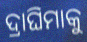
ଦ୍ରାଘିମାକୁ